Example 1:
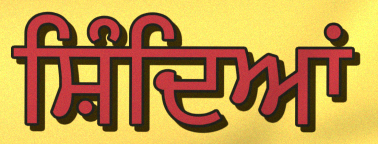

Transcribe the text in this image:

ਸ਼ਿੰਦਿਆਂ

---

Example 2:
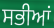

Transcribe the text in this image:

ਸਭੀਆਂ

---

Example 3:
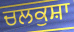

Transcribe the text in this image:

ਚਲਕੁਸ਼ਾ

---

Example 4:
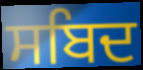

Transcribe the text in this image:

ਸਬਿਦ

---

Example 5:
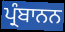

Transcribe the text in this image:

ਪ੍ਰੰਬਾਨਨ